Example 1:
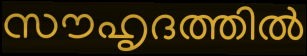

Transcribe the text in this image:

സൗഹൃദത്തിൽ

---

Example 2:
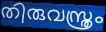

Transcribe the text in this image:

തിരുവസ്ത്രം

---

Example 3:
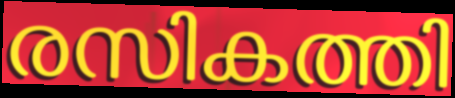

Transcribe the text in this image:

രസികത്തി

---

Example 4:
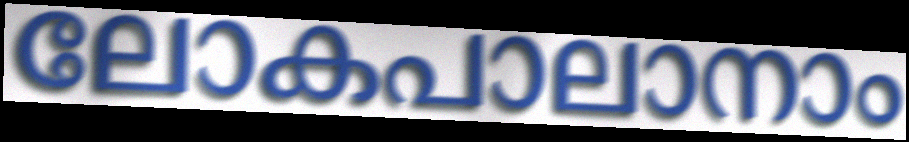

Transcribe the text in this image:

ലോകപാലാനാം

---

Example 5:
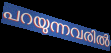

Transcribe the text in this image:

പറയുന്നവരിൽ